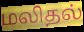
மலிதல்